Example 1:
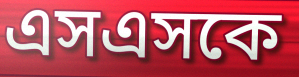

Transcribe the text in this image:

এসএসকে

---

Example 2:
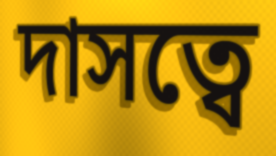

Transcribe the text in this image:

দাসত্বে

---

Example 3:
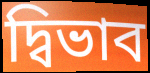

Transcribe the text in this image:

দ্বিভাব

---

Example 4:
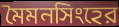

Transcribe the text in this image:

মৈমনসিংহের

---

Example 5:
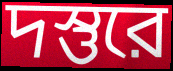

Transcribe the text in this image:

দস্তুরে